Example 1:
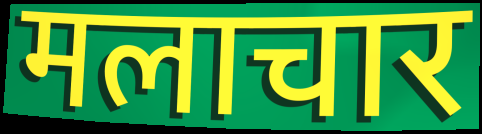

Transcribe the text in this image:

मलाचार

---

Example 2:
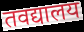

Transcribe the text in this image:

तवद्यालय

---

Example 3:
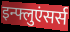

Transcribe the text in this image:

इन्फ्लुएंसर्स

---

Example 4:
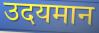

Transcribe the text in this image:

उदयमान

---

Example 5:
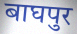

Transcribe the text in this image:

बाघपुर